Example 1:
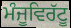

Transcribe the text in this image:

ਮੰਜੂਵਿਰੱਟੂ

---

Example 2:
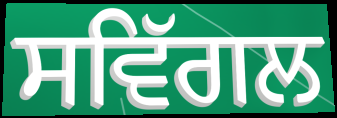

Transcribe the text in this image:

ਸਵਿੱਗਲ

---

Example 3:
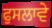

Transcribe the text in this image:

ਫੁਸਲਾਵੇ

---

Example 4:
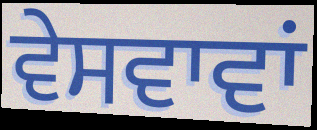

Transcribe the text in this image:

ਵੇਸਵਾਵਾਂ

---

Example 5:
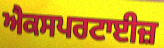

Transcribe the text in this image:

ਐਕਸਪਰਟਾਈਜ਼